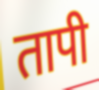
तापी